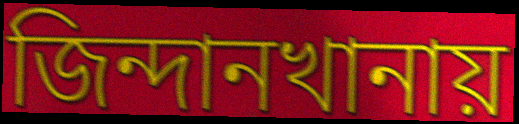
জিন্দানখানায়